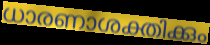
ധാരണാശക്തിക്കും